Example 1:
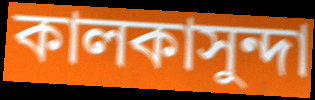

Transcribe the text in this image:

কালকাসুন্দা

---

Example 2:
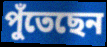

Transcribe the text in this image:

পুঁতেছেন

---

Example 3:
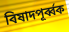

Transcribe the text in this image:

বিষাদপূর্ব্বক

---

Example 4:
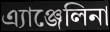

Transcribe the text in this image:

এ্যাঞ্জেলিনা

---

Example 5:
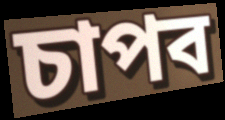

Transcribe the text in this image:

চাপব